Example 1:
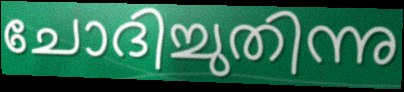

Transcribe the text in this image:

ചോദിച്ചുതിന്നു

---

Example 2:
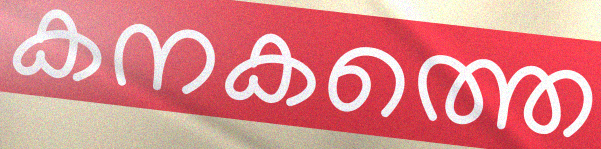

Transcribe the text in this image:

കനകത്തെ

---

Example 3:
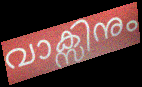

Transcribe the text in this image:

വാക്സിനും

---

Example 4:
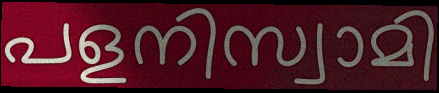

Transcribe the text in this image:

പളനിസ്വാമി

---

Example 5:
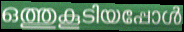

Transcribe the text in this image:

ഒത്തുകൂടിയപ്പോൾ